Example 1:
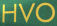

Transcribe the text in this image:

HVO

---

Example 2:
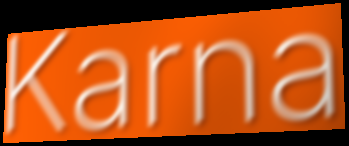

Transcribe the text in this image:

Karna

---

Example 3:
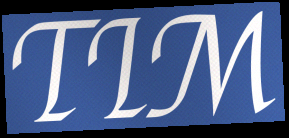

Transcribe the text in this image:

TIM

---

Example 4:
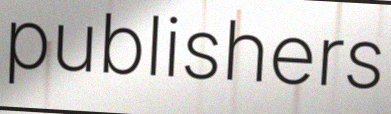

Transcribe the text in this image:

publishers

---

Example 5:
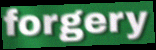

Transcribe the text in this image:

forgery